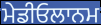
ਮੇਡੀਓਲਾਨਮ